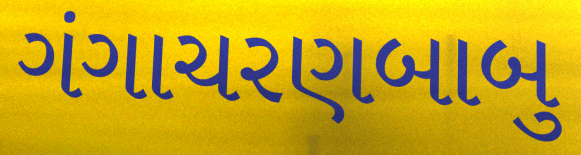
ગંગાચરણબાબુ